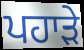
ਪਹਾੜੇ